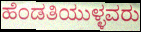
ಹೆಂಡತಿಯುಳ್ಳವರು